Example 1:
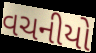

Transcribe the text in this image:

વચનીયો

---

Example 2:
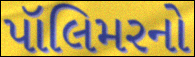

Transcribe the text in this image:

પૉલિમરનો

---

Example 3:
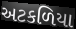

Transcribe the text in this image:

અટકળિયા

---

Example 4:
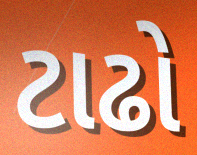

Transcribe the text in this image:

ટાઢો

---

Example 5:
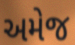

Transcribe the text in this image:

અમેજ